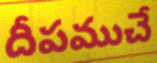
దీపముచే